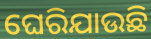
ଘେରିଯାଉଛି